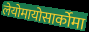
लेयोमायोसार्कोमा